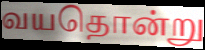
வயதொன்று